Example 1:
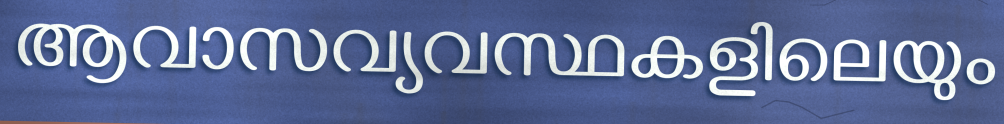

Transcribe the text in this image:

ആവാസവ്യവസ്ഥകളിലെയും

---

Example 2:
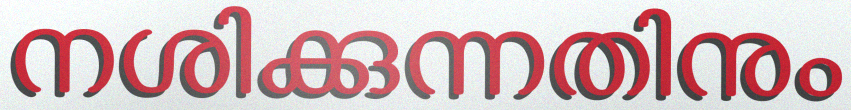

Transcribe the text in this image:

നശിക്കുന്നതിനും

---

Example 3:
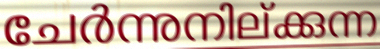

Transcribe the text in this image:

ചേർന്നുനില്ക്കുന്ന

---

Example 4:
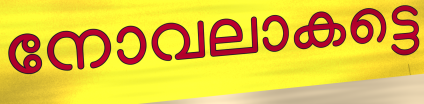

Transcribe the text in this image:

നോവലാകട്ടെ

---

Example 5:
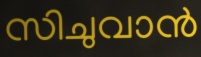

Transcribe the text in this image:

സിചുവാൻ